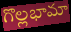
గొల్లభామా